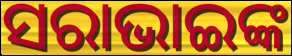
ସରାଭାଇଙ୍କ